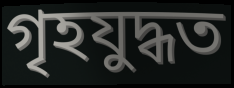
গৃহযুদ্ধত